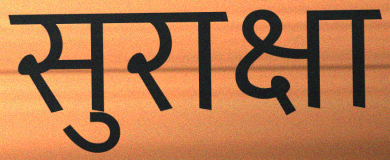
सुराक्षा